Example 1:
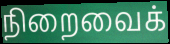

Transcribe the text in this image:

நிறைவைக்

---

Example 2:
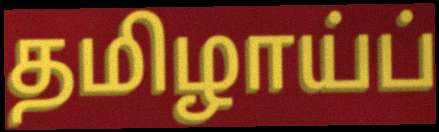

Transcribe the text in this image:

தமிழாய்ப்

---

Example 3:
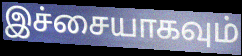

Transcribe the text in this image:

இச்சையாகவும்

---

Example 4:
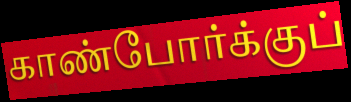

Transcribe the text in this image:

காண்போர்க்குப்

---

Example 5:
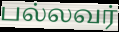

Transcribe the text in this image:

பல்லவர்